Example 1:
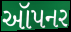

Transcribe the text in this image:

ઑપનર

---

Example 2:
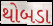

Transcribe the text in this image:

થોબડા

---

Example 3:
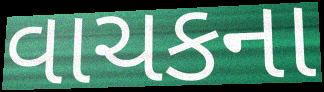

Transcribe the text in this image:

વાચકના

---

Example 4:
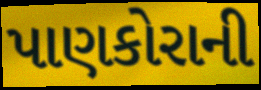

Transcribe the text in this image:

પાણકોરાની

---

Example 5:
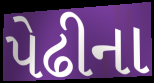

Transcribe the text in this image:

પેઢીના